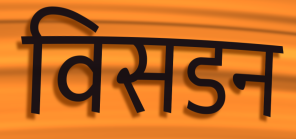
विसडन